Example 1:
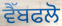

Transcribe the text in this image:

ਵੈੱਬਫਲੋ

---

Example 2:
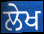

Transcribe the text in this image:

ਲੇਖ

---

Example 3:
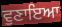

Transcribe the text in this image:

ਵੁਣਾਇਆ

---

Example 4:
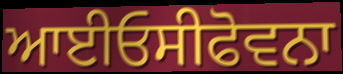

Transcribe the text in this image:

ਆਈਓਸੀਫੋਵਨਾ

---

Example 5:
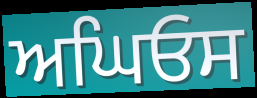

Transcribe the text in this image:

ਅਘਿਓਸ